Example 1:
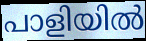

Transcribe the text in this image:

പാളിയിൽ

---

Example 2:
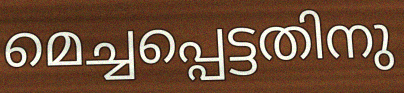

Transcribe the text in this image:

മെച്ചപ്പെട്ടതിനു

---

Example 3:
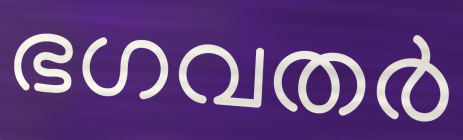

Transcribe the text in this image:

ഭഗവതർ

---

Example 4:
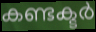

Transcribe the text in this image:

കണ്ടക്ടർ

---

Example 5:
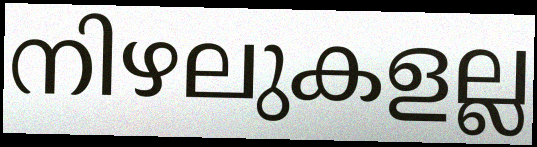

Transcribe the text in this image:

നിഴലുകളല്ല